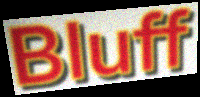
Bluff